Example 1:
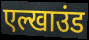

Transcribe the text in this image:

एल्खाउंड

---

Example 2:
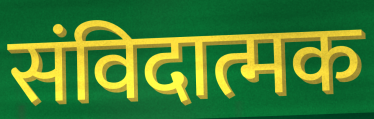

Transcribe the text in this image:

संविदात्मक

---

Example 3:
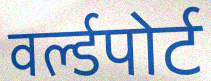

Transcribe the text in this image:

वर्ल्डपोर्ट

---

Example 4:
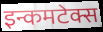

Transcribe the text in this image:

इन्कमटेक्स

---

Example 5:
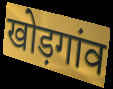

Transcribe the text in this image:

खोड़गांव